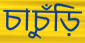
চাচুঁড়ি